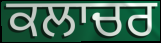
ਕਲਾਚਰ